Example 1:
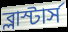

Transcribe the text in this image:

ব্লাস্টার্স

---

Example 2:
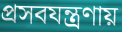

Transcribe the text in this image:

প্রসবযন্ত্রণায়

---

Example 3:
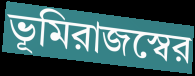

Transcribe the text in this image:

ভূমিরাজস্বের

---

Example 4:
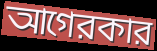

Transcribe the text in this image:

আগেরকার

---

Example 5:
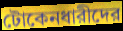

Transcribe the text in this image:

টোকেনধারীদের